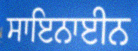
ਸਾਇਨਾਈਨ